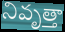
నివృత్తా